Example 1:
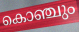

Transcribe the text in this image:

കൊഞ്ചും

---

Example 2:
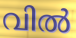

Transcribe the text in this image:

വിൽ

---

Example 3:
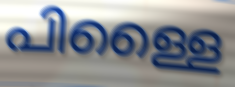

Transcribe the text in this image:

പിള്ളൈ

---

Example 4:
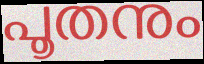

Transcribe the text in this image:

പൂതനും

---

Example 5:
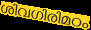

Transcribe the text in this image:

ശിവഗിരിമഠം